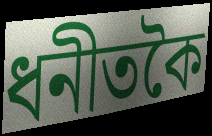
ধনীতকৈ